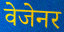
वेजेनर